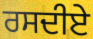
ਰਸਦੀਏ